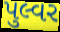
પુલ્વર